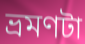
ভ্রমণটা